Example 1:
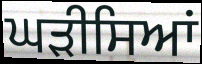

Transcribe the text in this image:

ਘੜੀਸਿਆਂ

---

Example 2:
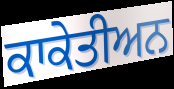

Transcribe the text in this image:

ਕਾਕੇਤੀਅਨ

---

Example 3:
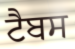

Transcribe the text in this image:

ਟੈਬਸ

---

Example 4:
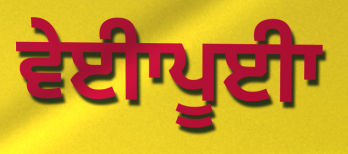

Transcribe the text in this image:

ਵੇਈਾਪੂਈਾ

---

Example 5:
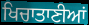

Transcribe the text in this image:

ਖਿਚਾਤਾਣੀਆਂ